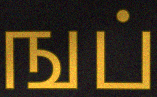
ஙப்